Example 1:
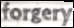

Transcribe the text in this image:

forgery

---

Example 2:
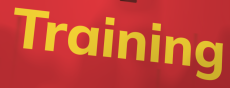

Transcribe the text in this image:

Training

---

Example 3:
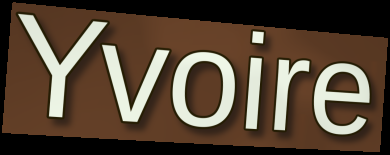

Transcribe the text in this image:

Yvoire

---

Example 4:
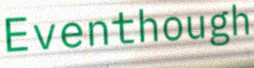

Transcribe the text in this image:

Eventhough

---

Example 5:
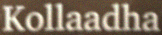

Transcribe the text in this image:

Kollaadha